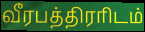
வீரபத்திரரிடம்